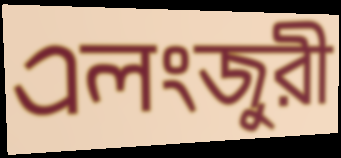
এলংজুরী